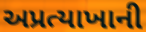
અપ્રત્યાખાની